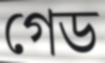
গেড